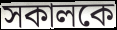
সকালকে